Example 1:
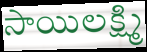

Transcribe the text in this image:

సాయిలక్ష్మి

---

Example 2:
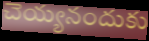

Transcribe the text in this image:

చెయ్యనందుకు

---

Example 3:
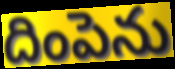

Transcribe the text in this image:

దింపెను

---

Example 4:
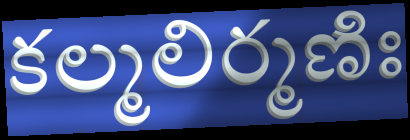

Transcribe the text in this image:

కల్మలిర్మణిః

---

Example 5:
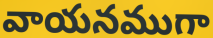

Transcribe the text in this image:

వాయనముగా